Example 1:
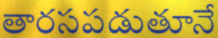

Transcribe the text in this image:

తారసపడుతూనే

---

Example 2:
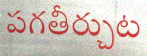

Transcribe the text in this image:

పగతీర్చుట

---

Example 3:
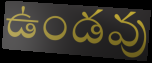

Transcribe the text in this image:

ఉండవు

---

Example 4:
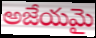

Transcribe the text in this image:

అజేయమై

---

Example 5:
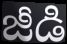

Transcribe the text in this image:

జీడి